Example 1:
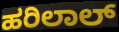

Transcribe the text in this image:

ಹರಿಲಾಲ್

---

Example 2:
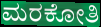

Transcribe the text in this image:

ಮರಕೋತಿ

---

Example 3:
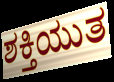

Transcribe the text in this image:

ಶಕ್ತಿಯುತ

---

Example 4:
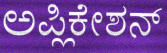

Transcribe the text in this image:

ಅಪ್ಲಿಕೇಶನ್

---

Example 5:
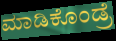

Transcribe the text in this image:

ಮಾಡಿಕೊಂಡ್ರೆ